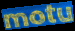
motu